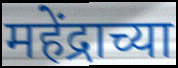
महेंद्राच्या